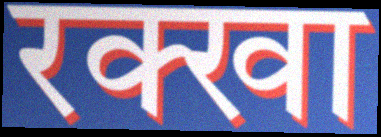
रक्‍खा